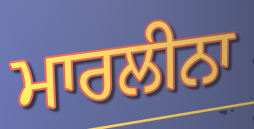
ਮਾਰਲੀਨਾ